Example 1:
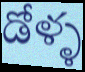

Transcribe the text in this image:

డోళ్ళ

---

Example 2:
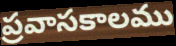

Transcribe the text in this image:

ప్రవాసకాలము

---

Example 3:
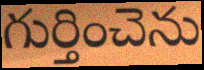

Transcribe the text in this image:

గుర్తించెను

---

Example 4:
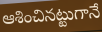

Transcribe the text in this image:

ఆశించినట్టుగానే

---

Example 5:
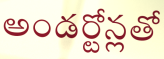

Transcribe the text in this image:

అండర్టోన్లతో